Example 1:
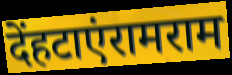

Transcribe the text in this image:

देंहटाएंरामराम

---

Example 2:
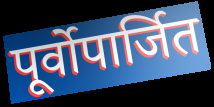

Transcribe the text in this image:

पूर्वोपार्जित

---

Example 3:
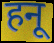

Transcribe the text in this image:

हनू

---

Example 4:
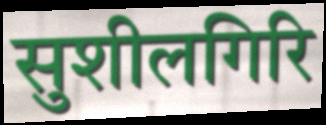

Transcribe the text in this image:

सुशीलगिरि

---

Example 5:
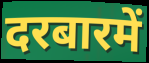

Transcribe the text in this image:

दरबारमें